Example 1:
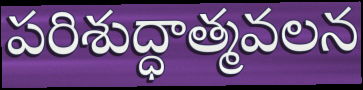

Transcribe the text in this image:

పరిశుద్ధాత్మవలన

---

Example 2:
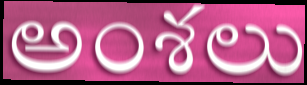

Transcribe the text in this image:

అంశలు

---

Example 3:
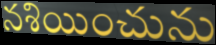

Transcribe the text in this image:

నశియించును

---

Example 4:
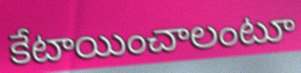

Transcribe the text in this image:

కేటాయించాలంటూ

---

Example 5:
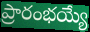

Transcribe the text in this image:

ప్రారంభయ్యే